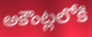
అకౌంట్లలోకి